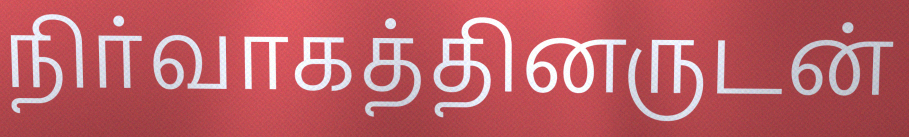
நிர்வாகத்தினருடன்